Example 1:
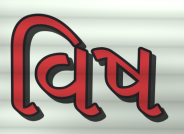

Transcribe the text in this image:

વિષ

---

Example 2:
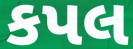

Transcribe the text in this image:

કપલ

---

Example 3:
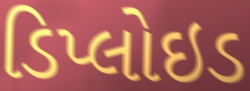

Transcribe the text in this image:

ડિપ્લોઇડ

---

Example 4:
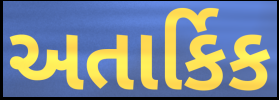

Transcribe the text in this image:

અતાર્કિક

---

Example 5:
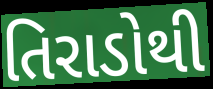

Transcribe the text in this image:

તિરાડોથી